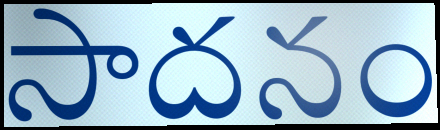
సాదనం